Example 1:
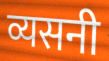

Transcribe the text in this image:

व्यसनी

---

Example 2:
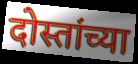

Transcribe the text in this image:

दोस्तांच्या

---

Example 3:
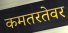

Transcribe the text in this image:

कमतरतेवर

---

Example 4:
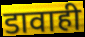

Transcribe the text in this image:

डावाही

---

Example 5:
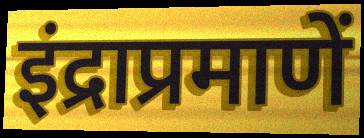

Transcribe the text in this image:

इंद्राप्रमाणें